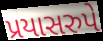
પ્રયાસરુપે